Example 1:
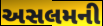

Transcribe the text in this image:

અસલમની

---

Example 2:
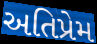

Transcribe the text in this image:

અતિપ્રેમ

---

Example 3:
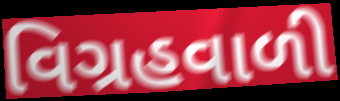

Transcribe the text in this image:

વિગ્રહવાળી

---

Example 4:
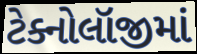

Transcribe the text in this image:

ટેક્નોલૉજીમાં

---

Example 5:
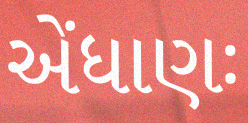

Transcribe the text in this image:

એંધાણઃ